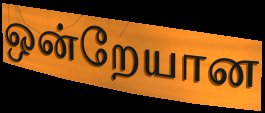
ஒன்றேயான